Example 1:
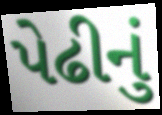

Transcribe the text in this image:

પેઢીનું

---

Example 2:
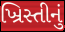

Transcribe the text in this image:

ખ્રિસ્તીનું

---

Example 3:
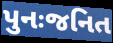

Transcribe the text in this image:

પુનઃજનિત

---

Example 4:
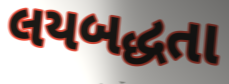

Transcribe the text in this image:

લયબદ્ધતા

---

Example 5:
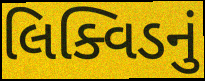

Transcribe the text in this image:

લિક્વિડનું